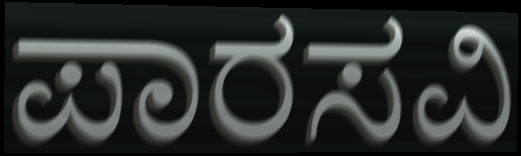
ಪಾರಸವಿ